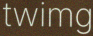
twimg